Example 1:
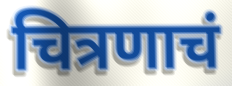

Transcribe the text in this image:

चित्रणाचं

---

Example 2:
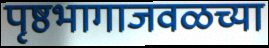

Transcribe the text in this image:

पृष्ठभागाजवळच्या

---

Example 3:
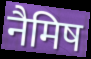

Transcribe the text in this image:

नैमिष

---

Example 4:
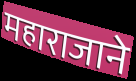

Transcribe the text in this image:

महाराजाने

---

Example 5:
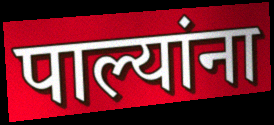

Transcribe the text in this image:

पाल्यांना